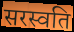
सरस्वति